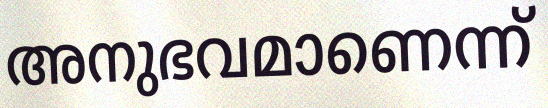
അനുഭവമാണെന്ന്